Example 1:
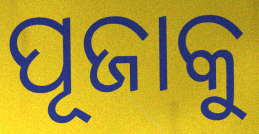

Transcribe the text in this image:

ପୂଜାକୁ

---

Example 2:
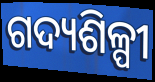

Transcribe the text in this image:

ଗଦ୍ୟଶିଳ୍ପୀ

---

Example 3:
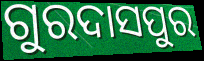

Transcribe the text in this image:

ଗୁରଦାସପୁର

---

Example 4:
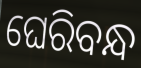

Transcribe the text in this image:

ଘେରିବନ୍ଧ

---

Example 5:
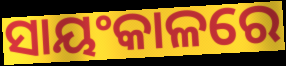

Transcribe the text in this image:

ସାୟଂକାଳରେ